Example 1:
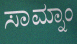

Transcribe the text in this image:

ಸಾಮ್ನಾಂ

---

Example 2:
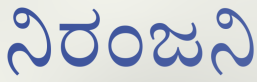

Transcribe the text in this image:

ನಿರಂಜನಿ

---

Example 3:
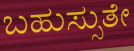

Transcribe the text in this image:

ಬಹುಸ್ಸುತೇ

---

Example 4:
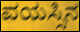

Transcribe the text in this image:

ವಯಸ್ಸಿನ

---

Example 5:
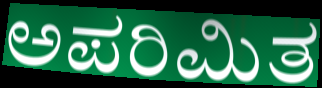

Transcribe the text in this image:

ಅಪರಿಮಿತ